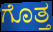
ಗೊತ್ತ